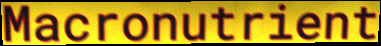
Macronutrient